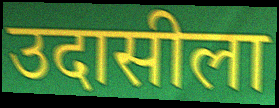
उदासीला